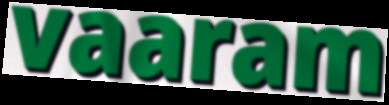
vaaram